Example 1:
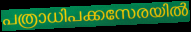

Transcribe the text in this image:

പത്രാധിപക്കസേരയിൽ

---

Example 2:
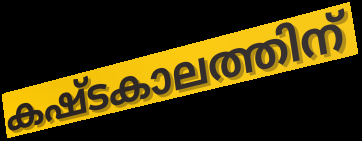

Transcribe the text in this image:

കഷ്ടകാലത്തിന്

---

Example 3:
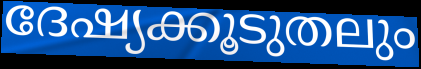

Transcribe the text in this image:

ദേഷ്യക്കൂടുതലും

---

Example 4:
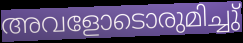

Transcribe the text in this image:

അവളോടൊരുമിച്ചു്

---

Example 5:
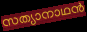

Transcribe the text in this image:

സത്യാനാഥൻ